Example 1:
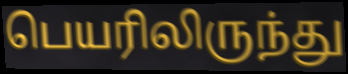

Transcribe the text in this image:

பெயரிலிருந்து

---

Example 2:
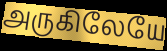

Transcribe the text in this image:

அருகிலேயே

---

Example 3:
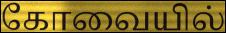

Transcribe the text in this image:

கோவையில்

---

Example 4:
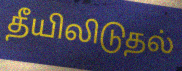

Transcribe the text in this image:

தீயிலிடுதல்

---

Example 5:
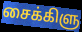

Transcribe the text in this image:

சைக்கிளு